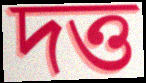
দত্ত